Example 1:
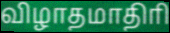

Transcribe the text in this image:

விழாதமாதிரி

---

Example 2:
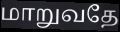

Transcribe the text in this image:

மாறுவதே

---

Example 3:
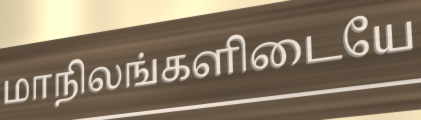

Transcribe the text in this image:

மாநிலங்களிடையே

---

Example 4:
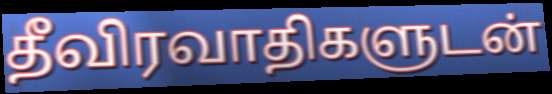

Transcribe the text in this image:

தீவிரவாதிகளுடன்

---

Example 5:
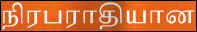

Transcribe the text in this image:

நிரபராதியான